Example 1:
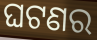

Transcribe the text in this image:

ଘଟଣର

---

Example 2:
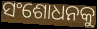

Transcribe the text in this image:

ସଂଶୋଧନକୁ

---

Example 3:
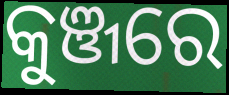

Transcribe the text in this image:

କୁଞ୍ଜରେ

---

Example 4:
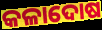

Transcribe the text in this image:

କଳାଦୋଷ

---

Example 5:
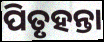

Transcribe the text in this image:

ପିତୃହନ୍ତା